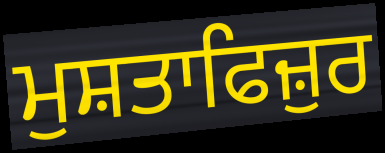
ਮੁਸ਼ਤਾਫਿਜ਼ੁਰ